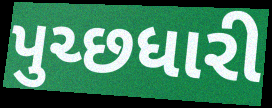
પુચ્છધારી